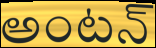
అంటన్